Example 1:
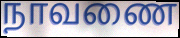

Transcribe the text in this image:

நாவணை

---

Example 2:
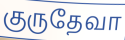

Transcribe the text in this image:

குருதேவா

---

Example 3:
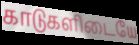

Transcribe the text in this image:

காடுகளிடையே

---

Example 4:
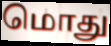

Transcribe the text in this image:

மொது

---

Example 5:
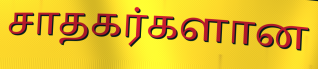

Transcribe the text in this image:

சாதகர்களான